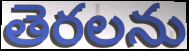
తెరలను